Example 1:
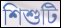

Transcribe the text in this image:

শিশুটি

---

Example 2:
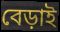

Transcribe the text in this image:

বেড়াই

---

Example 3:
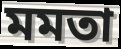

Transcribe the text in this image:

মমতা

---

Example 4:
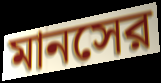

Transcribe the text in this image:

মানসের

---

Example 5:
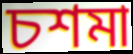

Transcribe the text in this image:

চশমা